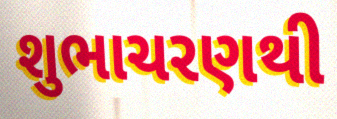
શુભાચરણથી